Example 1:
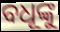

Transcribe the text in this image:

ବଧୂଙ୍କୁ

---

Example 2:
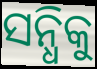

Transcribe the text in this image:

ସନ୍ଧିକୁ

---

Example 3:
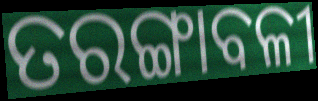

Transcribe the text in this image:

ତରଙ୍ଗାବଳୀ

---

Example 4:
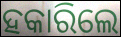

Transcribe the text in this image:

ହକାରିଲେ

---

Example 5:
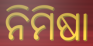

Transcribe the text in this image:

ନିମିଷା